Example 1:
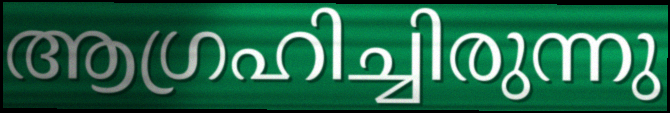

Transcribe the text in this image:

ആഗ്രഹിച്ചിരുന്നു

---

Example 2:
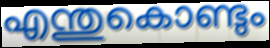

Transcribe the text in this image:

എന്തുകൊണ്ടും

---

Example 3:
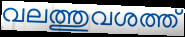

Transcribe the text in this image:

വലത്തുവശത്ത്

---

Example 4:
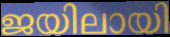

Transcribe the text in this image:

ജയിലായി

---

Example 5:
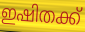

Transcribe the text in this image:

ഇഷിതക്ക്